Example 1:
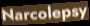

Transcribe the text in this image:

Narcolepsy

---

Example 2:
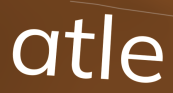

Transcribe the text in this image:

atle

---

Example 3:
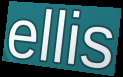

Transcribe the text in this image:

ellis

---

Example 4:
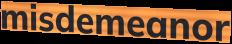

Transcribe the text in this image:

misdemeanor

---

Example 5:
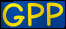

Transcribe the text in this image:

GPP